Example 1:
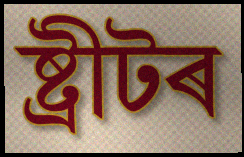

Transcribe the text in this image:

ষ্ট্ৰীটৰ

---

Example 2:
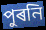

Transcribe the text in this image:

পুৰনি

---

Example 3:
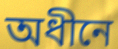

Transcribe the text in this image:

অধীনে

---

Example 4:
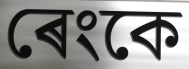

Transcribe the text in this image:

ৰেংকে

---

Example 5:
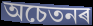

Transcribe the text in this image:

অচেতনৰ